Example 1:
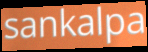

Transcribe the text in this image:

sankalpa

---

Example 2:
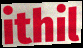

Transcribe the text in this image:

ithil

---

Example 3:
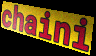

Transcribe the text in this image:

chaini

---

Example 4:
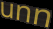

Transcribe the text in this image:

unn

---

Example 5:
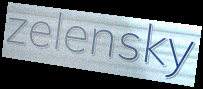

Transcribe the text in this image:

zelensky